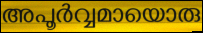
അപൂർവ്വമായൊരു